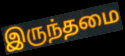
இருந்தமை